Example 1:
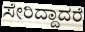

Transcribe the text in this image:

ಸೇರಿದ್ದಾದರೆ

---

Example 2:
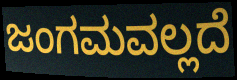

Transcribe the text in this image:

ಜಂಗಮವಲ್ಲದೆ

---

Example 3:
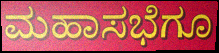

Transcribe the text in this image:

ಮಹಾಸಭೆಗೂ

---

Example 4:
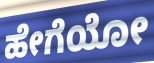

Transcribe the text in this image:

ಹೇಗೆಯೋ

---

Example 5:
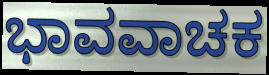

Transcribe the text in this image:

ಭಾವವಾಚಕ